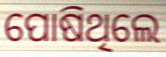
ପୋଷିଥିଲେ